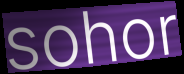
sohor